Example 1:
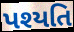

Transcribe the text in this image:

પશ્યતિ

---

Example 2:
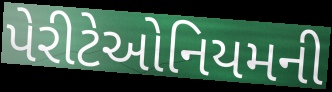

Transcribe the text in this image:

પેરીટેઓનિયમની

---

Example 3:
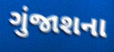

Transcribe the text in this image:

ગુંજાશના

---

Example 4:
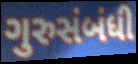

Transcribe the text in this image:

ગુરુસંબંધી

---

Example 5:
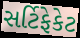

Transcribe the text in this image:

સર્ટિફેકેટ